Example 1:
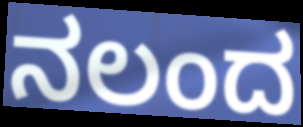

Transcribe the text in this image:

ನಲಂದ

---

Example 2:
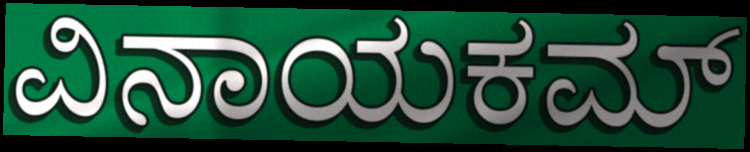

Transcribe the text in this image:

ವಿನಾಯಕಮ್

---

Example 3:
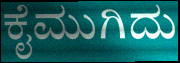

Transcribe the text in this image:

ಕೈಮುಗಿದು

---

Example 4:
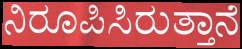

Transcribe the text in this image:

ನಿರೂಪಿಸಿರುತ್ತಾನೆ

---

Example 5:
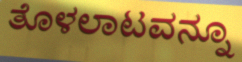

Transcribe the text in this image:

ತೊಳಲಾಟವನ್ನೂ